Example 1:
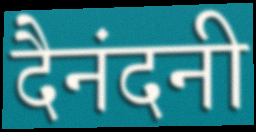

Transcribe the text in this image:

दैनंदनी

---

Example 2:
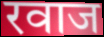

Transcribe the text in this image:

रवाज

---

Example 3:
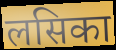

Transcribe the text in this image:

लसिका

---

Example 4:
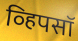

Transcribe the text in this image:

व्हिपसॉ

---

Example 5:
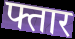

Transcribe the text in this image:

फ्तार